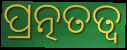
ପ୍ରତ୍ନତତ୍ୱ